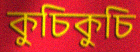
কুচিকুচি